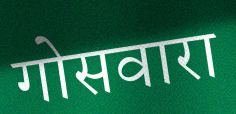
गोसवारा